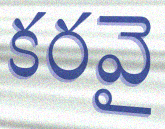
కరవై